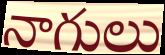
నాగులు